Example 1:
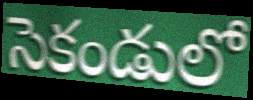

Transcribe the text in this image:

సెకండులో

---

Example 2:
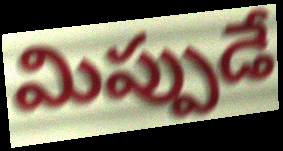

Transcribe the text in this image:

మిప్పుడే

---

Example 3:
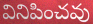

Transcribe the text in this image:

వినిపించవు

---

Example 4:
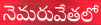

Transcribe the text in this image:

నెమరువేతలో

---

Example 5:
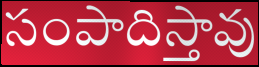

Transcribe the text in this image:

సంపాదిస్తావు